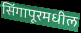
सिंगापूरमधील